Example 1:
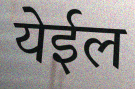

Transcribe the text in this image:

येईल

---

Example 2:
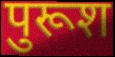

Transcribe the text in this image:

पुरूश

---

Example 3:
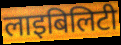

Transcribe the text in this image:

लाइबिलिटी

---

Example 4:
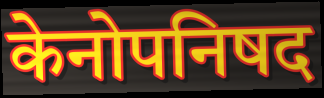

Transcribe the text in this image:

केनोपनिषद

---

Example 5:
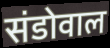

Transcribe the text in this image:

संडोवाल